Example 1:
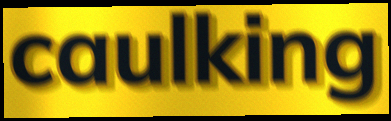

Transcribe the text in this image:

caulking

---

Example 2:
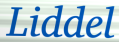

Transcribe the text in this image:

Liddel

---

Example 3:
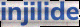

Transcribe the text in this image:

injilide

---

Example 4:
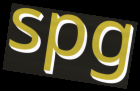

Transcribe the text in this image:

spg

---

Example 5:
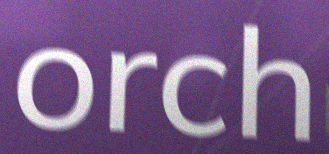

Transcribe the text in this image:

orch